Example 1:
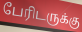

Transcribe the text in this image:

பேரிடருக்கு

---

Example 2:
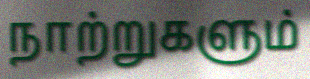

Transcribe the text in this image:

நாற்றுகளும்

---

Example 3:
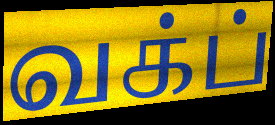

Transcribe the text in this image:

வக்ப்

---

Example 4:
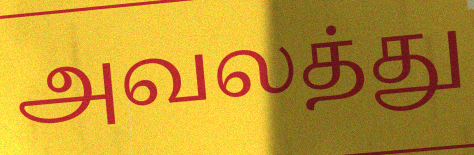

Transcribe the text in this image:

அவலத்து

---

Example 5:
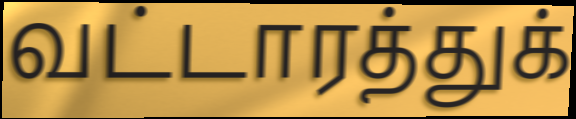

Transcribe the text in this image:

வட்டாரத்துக்